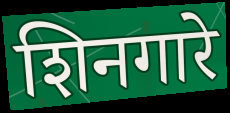
शिनगारे